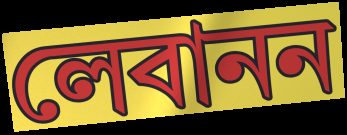
লেবানন